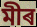
মীৰ